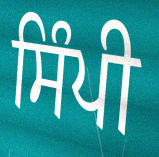
ਸਿੰਪੀ